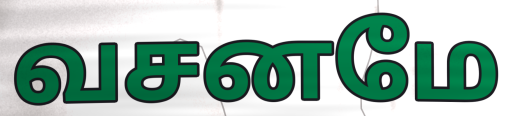
வசனமே